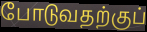
போடுவதற்குப்